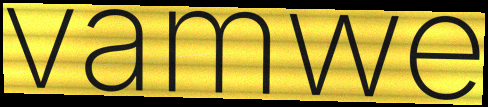
vamwe